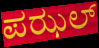
ಪಝಲ್